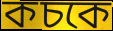
কচকে